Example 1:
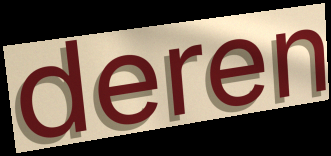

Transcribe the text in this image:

deren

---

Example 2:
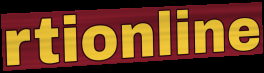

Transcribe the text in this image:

rtionline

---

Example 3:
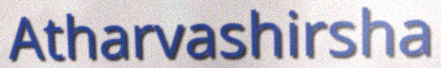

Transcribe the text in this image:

Atharvashirsha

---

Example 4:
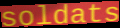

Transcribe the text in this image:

soldats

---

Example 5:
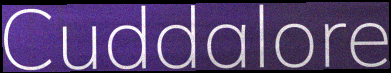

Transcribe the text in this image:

Cuddalore